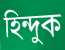
হিন্দুক